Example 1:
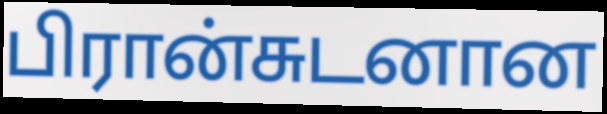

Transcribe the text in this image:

பிரான்சுடனான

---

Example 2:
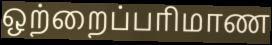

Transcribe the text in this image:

ஒற்றைப்பரிமாண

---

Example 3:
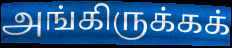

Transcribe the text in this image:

அங்கிருக்கக்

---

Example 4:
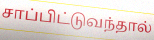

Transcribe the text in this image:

சாப்பிட்டுவந்தால்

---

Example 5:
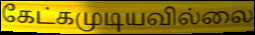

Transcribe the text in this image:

கேட்கமுடியவில்லை